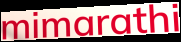
mimarathi